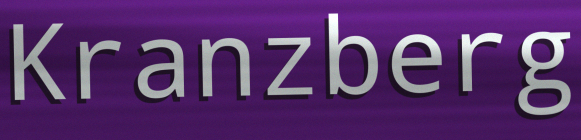
Kranzberg